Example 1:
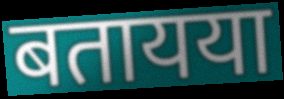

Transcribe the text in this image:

बतायया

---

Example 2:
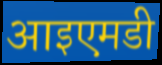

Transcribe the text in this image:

आइएमडी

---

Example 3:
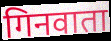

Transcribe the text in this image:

गिनवाता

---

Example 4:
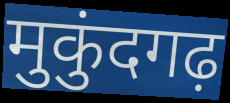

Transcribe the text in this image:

मुकुंदगढ़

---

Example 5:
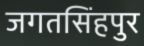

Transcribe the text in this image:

जगतसिंहपुर